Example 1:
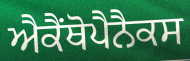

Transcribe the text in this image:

ਐਕੈਂਥੋਪੈਨੈਕਸ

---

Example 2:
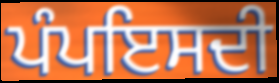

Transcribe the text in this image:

ਪੰਪਇਸਦੀ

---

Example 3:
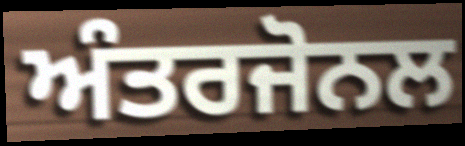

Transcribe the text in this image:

ਅੰਤਰਜੋਨਲ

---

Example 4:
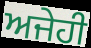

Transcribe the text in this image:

ਅਜੇਹੀ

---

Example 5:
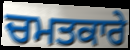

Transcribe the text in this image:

ਚਮਤਕਾਰੇ